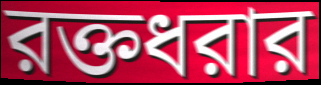
রক্তধরার